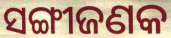
ସଙ୍ଗୀଜଣକ